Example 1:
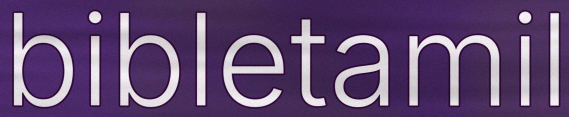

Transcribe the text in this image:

bibletamil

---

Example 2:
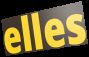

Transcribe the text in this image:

elles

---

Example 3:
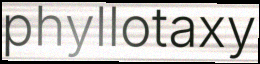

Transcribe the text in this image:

phyllotaxy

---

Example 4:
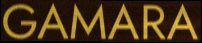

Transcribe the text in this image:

GAMARA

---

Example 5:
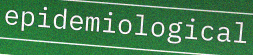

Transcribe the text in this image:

epidemiological